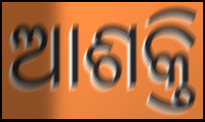
ଆଶକ୍ତି